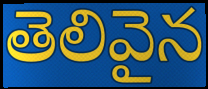
తెలివైన